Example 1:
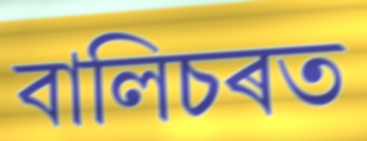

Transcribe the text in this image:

বালিচৰত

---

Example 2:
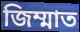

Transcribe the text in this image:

জিম্মাত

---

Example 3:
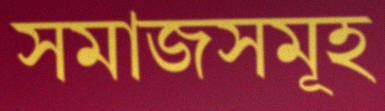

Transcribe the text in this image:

সমাজসমূহ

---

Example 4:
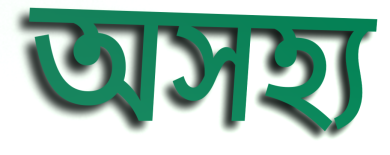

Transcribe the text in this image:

অসহ্য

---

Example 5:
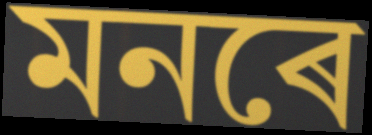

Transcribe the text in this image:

মনৰে